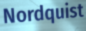
Nordquist